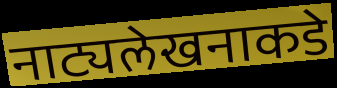
नाट्यलेखनाकडे